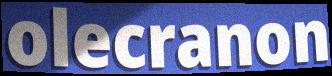
olecranon